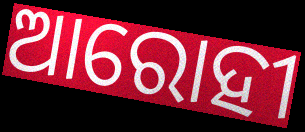
ଆରୋହୀ